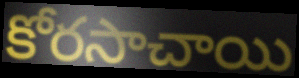
కోరసాచాయి